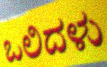
ಒಲಿದಳು